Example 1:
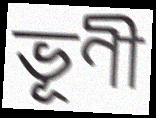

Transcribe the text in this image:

ভূণী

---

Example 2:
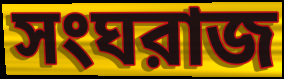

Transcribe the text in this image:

সংঘরাজ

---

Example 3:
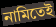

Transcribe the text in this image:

নামিতেই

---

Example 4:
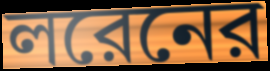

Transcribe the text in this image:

লরেনের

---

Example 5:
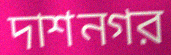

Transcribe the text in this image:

দাশনগর